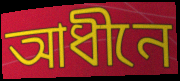
আধীনে